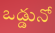
ఒడ్డునో